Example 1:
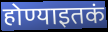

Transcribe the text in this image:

होण्याइतकं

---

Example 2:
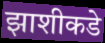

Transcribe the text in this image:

झाशीकडे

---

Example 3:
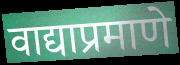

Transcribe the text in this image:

वाद्याप्रमाणे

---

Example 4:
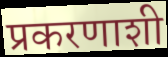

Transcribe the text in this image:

प्रकरणाशी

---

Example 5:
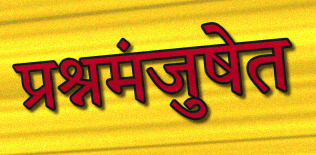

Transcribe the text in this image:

प्रश्नमंजुषेत